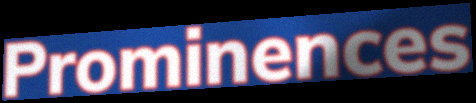
Prominences